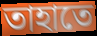
তাহাতে